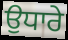
ਉਧਾਰੇ